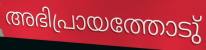
അഭിപ്രായത്തോടു്